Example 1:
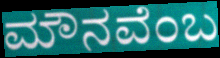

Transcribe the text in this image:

ಮೌನವೆಂಬ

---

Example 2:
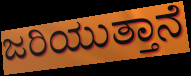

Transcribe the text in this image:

ಜರಿಯುತ್ತಾನೆ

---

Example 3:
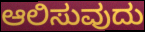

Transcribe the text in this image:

ಆಲಿಸುವುದು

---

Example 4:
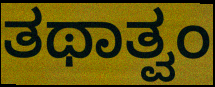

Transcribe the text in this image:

ತಥಾತ್ವಂ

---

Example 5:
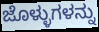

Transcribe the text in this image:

ಜೊಳ್ಳುಗಳನ್ನು